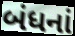
બંધનાં